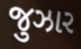
જુઝાર